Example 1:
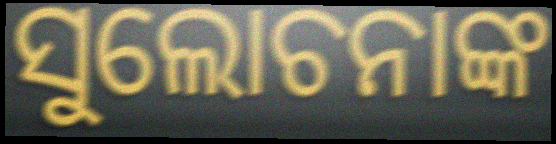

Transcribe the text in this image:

ସୁଲୋଚନାଙ୍କ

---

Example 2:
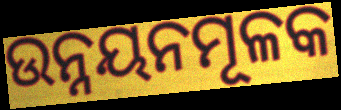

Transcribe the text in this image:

ଉନ୍ନୟନମୂଳକ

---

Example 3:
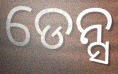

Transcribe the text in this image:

ଡେନ୍ସ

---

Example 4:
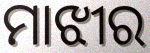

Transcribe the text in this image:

ମାଝୀର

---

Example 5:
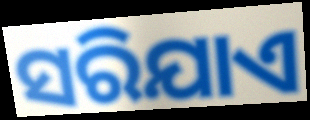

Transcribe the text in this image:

ସରିଯାଏ